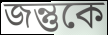
জন্তুকে